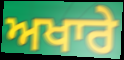
ਅਖਾਰੇ